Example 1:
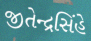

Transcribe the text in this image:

જીતેન્દ્રસિંહે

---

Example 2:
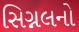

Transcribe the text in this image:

સિગ્નલનો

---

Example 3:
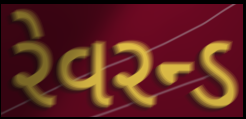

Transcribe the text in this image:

રેવરન્ડ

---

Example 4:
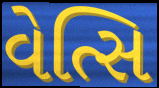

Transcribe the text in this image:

વેત્સિ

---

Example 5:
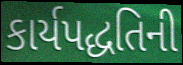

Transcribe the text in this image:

કાર્યપદ્ધતિની